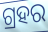
ଗ୍ରହର